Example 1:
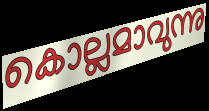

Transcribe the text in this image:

കൊല്ലമാവുന്നു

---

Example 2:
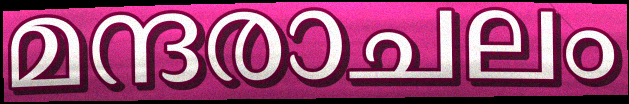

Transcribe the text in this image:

മന്ദരാചലം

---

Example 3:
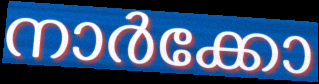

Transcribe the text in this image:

നാർക്കോ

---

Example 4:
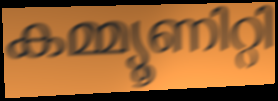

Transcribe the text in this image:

കമ്മ്യൂണിറ്റി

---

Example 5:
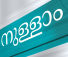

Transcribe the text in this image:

നുള്ളാം